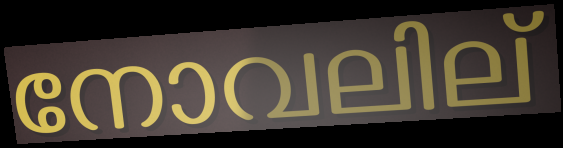
നോവലില്